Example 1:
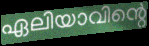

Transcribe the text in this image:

ഏലിയാവിന്റെ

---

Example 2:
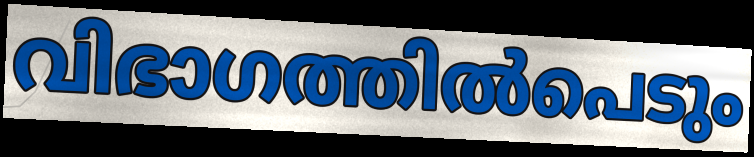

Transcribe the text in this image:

വിഭാഗത്തിൽപെടും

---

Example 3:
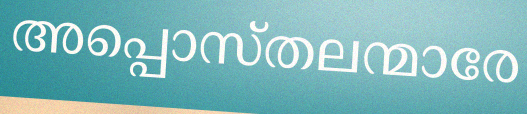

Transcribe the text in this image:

അപ്പൊസ്തലന്മാരേ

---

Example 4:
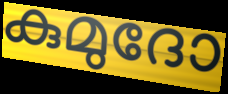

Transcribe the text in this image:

കുമുദോ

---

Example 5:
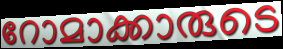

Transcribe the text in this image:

റോമാക്കാരുടെ